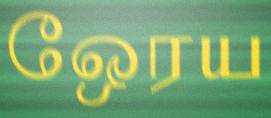
ஒேரய